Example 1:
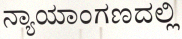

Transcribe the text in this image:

ನ್ಯಾಯಾಂಗಣದಲ್ಲಿ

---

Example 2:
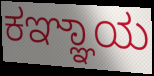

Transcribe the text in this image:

ಕಞ್ಞಾಯ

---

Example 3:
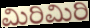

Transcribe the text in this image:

ಮಿರಿಮಿರಿ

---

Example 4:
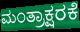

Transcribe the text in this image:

ಮಂತ್ರಾಕ್ಷರಕೆ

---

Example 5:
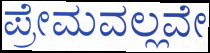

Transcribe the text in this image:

ಪ್ರೇಮವಲ್ಲವೇ